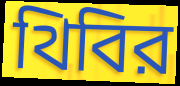
থিবির